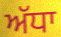
ਅੱਧਾ